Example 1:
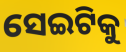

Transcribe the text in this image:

ସେଇଟିକୁ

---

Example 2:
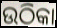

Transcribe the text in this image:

ଉଠିକା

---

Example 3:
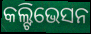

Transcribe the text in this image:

କଲ୍ଟିଭେସନ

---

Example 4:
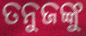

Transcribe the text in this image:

ତନୁଜଙ୍କୁ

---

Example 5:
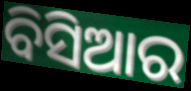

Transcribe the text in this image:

ବିସିଆର